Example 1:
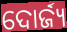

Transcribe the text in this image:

ଦୋର୍ଜ୍ୟ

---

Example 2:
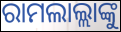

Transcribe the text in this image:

ରାମଲାଲ୍ଲାଙ୍କୁ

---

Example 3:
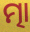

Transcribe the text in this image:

ତ୍ମା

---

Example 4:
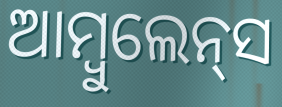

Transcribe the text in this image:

ଆମ୍ବୁଲେନ୍‌ସ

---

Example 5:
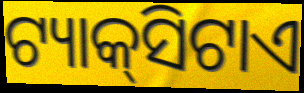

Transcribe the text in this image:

ଟ୍ୟାକ୍‌ସିଟାଏ